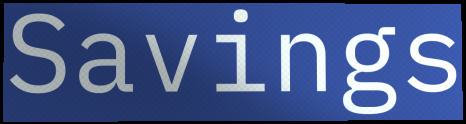
Savings